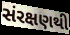
સંરક્ષણથી